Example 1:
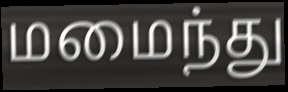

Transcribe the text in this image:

மமைந்து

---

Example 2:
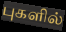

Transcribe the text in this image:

புகளில்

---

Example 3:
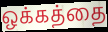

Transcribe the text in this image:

ஒக்கத்தை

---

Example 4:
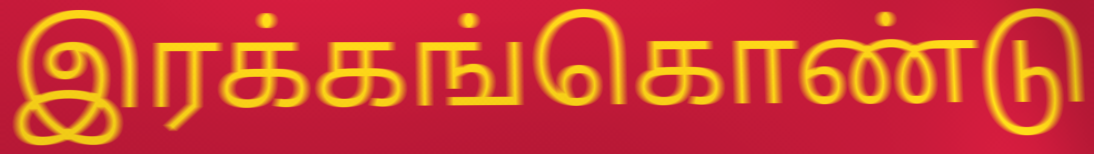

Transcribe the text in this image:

இரக்கங்கொண்டு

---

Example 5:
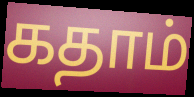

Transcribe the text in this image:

கதாம்